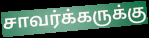
சாவர்க்கருக்கு